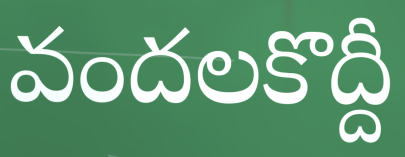
వందలకొద్దీ